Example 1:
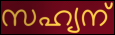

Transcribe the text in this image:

സഹ്യന്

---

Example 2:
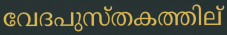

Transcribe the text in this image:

വേദപുസ്തകത്തില്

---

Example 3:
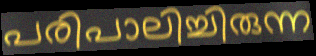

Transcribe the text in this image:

പരിപാലിച്ചിരുന്ന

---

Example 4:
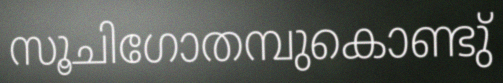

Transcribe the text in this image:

സൂചിഗോതമ്പുകൊണ്ടു്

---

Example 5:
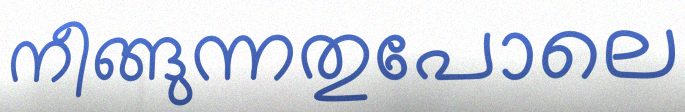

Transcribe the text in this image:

നീങ്ങുന്നതുപോലെ